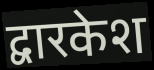
द्वारकेश